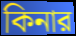
কিনার